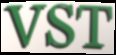
VST